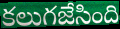
కలుగజేసింది